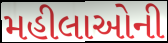
મહીલાઓની